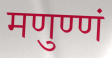
मणुण्णं